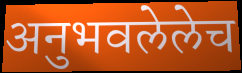
अनुभवलेलेच